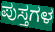
ಪುಸ್ತಗಳ